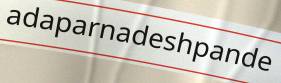
adaparnadeshpande